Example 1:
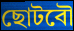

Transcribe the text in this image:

ছোটবৌ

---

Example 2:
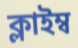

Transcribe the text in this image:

ক্লাইম্ব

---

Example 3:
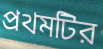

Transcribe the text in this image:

প্রথমটির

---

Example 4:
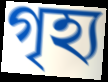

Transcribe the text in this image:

গৃহ্য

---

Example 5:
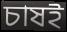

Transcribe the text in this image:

চাষই